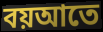
বয়আতে